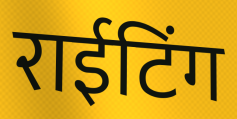
राईटिंग